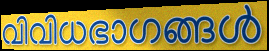
വിവിധഭാഗങ്ങൾ